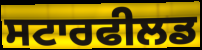
ਸਟਾਰਫੀਲਡ